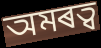
অমৰত্ব